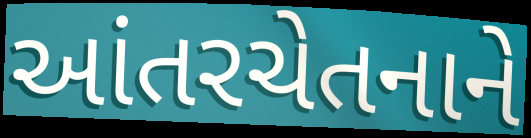
આંતરચેતનાને